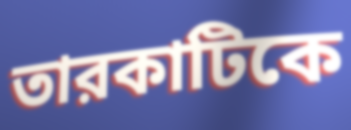
তারকাটিকে